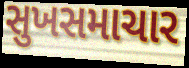
સુખસમાચાર